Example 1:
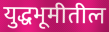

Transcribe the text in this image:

युद्धभूमीतील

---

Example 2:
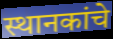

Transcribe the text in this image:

स्थानकांचे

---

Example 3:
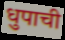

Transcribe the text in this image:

धुपाची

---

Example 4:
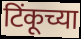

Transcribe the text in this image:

टिंकूच्या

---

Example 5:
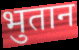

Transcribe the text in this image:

भुतान